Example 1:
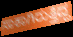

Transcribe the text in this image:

ಸಾಕಾಗಿರುತ್ತಿದ್ದ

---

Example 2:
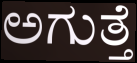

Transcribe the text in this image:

ಅಗುತ್ತೆ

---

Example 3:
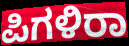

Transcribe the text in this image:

ಪಿಗಳಿರಾ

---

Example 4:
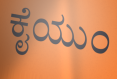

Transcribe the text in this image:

ಕೈಯುಂ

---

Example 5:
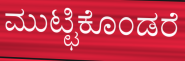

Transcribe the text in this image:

ಮುಟ್ಟಿಕೊಂಡರೆ